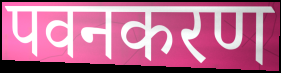
पवनकरण